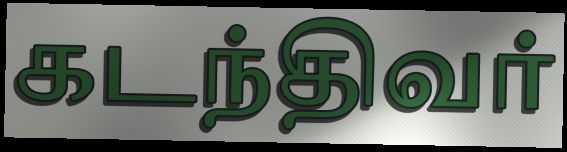
கடந்திவர்